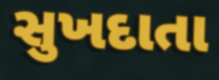
સુખદાતા